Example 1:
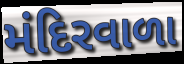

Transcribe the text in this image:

મંદિરવાળા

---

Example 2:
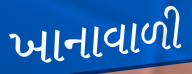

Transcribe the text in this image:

ખાનાવાળી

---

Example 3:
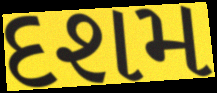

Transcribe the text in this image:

દશમ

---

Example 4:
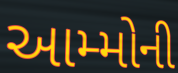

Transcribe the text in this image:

આમ્મોની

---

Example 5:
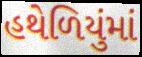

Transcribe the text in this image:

હથેળિયુંમાં